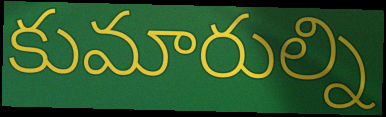
కుమారుల్ని